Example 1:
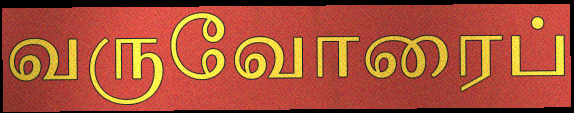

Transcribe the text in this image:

வருவோரைப்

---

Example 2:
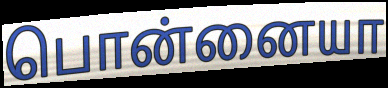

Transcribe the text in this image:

பொன்னையா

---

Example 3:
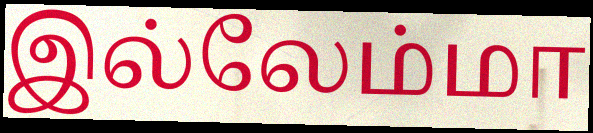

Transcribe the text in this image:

இல்லேம்மா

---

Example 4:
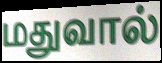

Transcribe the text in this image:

மதுவால்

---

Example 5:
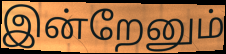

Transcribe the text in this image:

இன்றேனும்